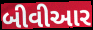
બીવીઆર